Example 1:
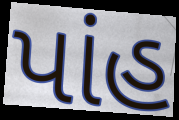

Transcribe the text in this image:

પાંહ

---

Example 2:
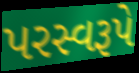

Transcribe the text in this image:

પરસ્વરૂપે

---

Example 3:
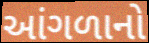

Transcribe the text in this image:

આંગળાનો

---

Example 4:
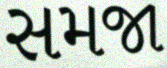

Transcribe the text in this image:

સમજા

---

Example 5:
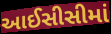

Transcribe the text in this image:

આઈસીસીમાં